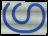
ഗ്ര